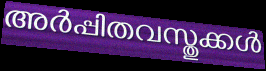
അർപ്പിതവസ്തുക്കൾ